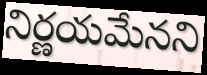
నిర్ణయమేనని